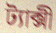
ট্যাক্সী